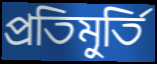
প্রতিমুর্তি